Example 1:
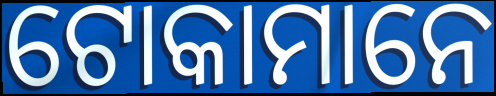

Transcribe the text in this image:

ଟୋକାମାନେ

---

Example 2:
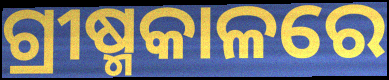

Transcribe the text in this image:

ଗ୍ରୀଷ୍ମକାଳରେ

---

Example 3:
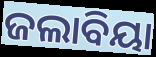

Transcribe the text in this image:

ଜଲାବିୟା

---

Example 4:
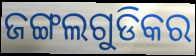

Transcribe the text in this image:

ଜଙ୍ଗଲଗୁଡିକର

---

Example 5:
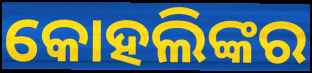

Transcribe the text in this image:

କୋହଲିଙ୍କର